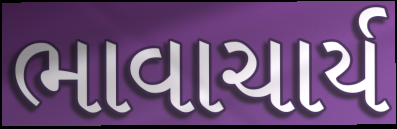
ભાવાચાર્ય